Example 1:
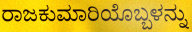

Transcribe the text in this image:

ರಾಜಕುಮಾರಿಯೊಬ್ಬಳನ್ನು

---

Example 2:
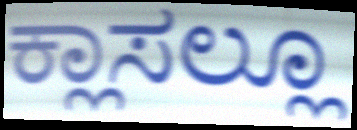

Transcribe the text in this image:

ಕ್ಲಾಸಲ್ಲೂ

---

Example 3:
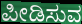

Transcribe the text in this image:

ಪೀಡಿಸುವ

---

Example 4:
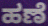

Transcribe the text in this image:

ಹಣೆ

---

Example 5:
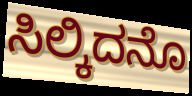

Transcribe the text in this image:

ಸಿಲ್ಕಿದನೊ